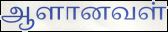
ஆளானவள்